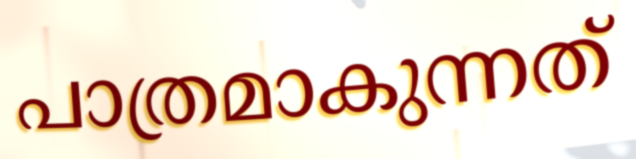
പാത്രമാകുന്നത്